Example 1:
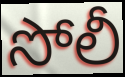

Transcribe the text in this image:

సోలీ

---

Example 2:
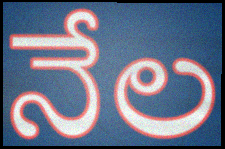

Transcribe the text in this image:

నేల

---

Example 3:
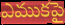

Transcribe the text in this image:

ఎముకపై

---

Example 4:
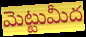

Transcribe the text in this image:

మెట్టుమీద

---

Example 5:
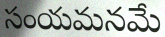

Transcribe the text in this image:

సంయమనమే